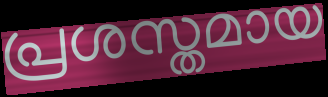
പ്രശസ്തമായ